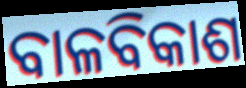
ବାଳବିକାଶ